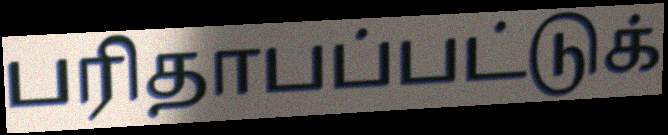
பரிதாபப்பட்டுக்